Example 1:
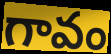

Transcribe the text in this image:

గావం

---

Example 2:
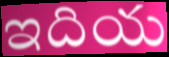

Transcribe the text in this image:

ఇదియ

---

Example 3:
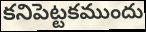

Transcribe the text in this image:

కనిపెట్టకముందు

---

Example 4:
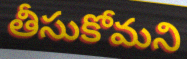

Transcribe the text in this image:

తీసుకోమని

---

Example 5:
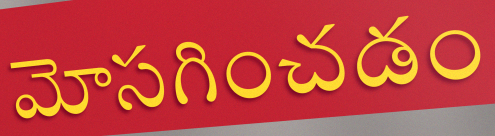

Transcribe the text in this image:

మోసగించడం